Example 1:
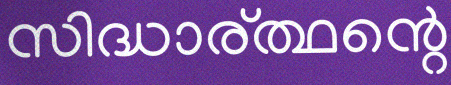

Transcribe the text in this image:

സിദ്ധാര്ത്ഥന്റെ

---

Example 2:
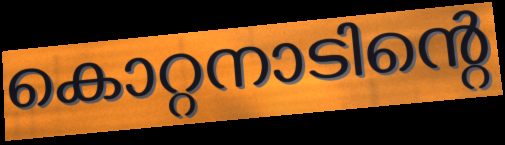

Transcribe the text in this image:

കൊറ്റനാടിന്റെ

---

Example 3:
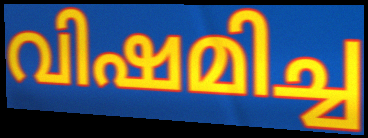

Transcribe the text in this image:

വിഷമിച്ച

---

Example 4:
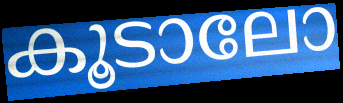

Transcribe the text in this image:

കൂടാലോ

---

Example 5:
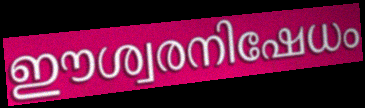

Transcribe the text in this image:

ഈശ്വരനിഷേധം